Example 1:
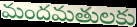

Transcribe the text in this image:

మందమతులకు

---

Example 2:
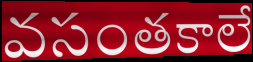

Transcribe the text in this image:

వసంతకాలే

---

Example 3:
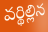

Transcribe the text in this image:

వర్థిల్లిన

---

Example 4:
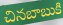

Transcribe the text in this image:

చినబాబుకి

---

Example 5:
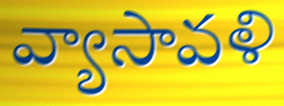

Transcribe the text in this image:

వ్యాసావళి